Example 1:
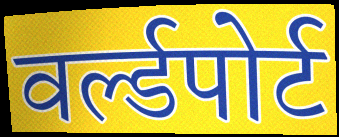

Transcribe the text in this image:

वर्ल्डपोर्ट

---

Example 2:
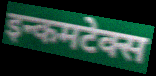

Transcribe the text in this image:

इन्कमटेक्स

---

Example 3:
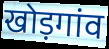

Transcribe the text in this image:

खोड़गांव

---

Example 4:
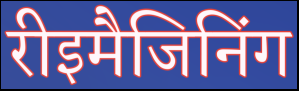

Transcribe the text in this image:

रीइमैजिनिंग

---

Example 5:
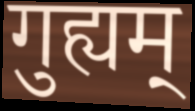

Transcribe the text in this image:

गुह्यम्